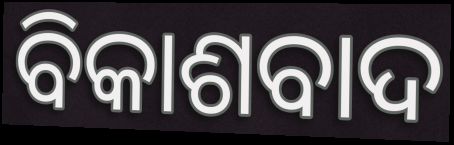
ବିକାଶବାଦ